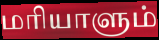
மரியாளும்